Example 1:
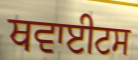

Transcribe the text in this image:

ਥਵਾਈਟਸ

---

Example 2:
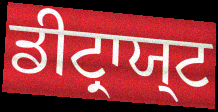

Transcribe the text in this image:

ਡੀਟ੍ਰਾਯ੍ਟ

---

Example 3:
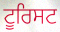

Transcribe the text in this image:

ਟੂਰਿਸਟ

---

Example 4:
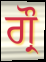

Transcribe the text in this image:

ਗ੍ਰੌ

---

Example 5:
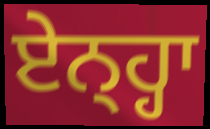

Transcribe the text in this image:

ਏਨ੍ਹ੍ਹਾ